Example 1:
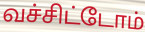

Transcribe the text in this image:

வச்சிட்டோம்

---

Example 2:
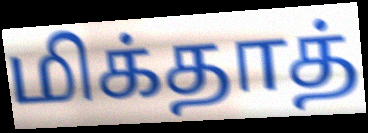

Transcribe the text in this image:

மிக்தாத்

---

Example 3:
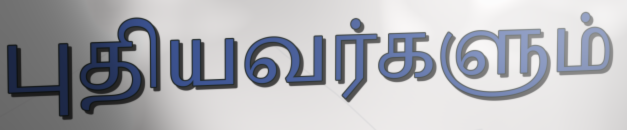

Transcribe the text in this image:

புதியவர்களும்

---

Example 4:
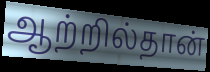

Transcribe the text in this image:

ஆற்றில்தான்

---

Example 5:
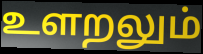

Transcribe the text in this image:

உளறலும்